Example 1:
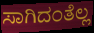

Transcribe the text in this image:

ಸಾಗಿದಂತೆಲ್ಲ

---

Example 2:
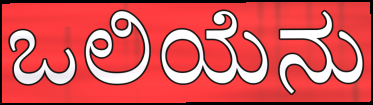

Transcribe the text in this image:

ಒಲಿಯೆನು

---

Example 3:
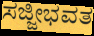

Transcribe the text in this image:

ಸಜ್ಜೀಭವತ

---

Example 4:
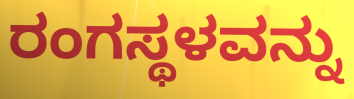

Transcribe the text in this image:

ರಂಗಸ್ಥಳವನ್ನು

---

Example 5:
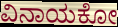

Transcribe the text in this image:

ವಿನಾಯಕೋ